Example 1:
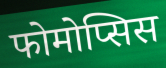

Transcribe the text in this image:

फोमोप्सिस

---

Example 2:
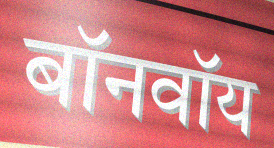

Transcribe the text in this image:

बॉनवॉय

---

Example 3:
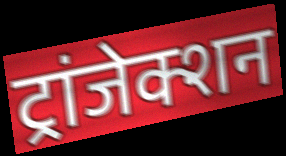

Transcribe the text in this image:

ट्रांजेक्शन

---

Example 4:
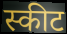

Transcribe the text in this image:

स्कीट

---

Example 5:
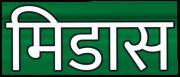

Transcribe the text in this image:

मिडास